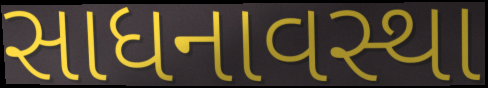
સાધનાવસ્થા